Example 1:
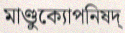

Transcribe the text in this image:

মাণ্ডুক্যোপনিষদ্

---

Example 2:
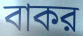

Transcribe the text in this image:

বাকর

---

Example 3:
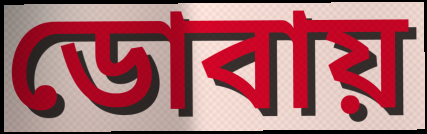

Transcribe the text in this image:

ডোবায়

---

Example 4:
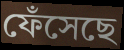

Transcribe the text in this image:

ফেঁসেছে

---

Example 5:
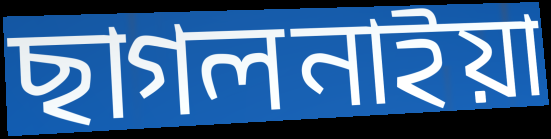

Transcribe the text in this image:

ছাগলনাইয়া